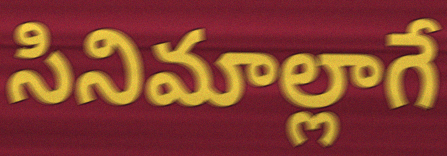
సినిమాల్లాగే